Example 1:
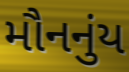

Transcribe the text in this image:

મૌનનુંય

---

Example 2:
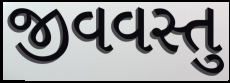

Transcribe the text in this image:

જીવવસ્તુ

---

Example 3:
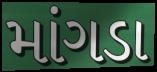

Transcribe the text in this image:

માંગડા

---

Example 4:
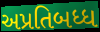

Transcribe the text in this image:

અપ્રતિબધ્ધ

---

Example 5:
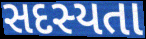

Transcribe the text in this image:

સદસ્યતા